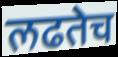
लढतेच